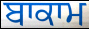
ਬਾਕਾਮ